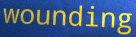
wounding